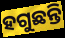
ହଗୁଛନ୍ତି